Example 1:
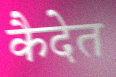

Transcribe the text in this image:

कैदेत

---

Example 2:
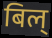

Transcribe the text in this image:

बिल्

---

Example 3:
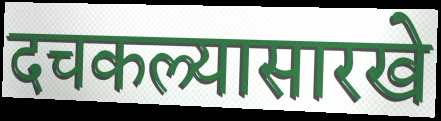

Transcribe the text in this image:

दचकल्यासारखे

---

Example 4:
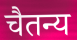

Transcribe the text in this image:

चैतन्य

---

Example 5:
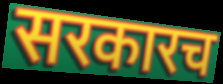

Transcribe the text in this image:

सरकारच